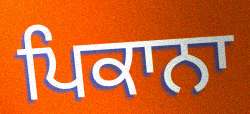
ਪਿਕਾਨਾ